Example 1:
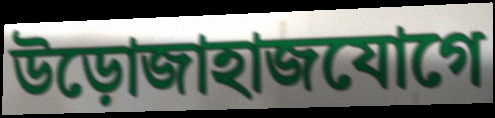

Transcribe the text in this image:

উড়োজাহাজযোগে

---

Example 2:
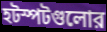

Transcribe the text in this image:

হটস্পটগুলোর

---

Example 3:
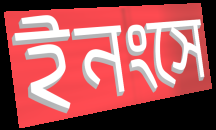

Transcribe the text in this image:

ইনংসে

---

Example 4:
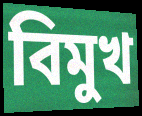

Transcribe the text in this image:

বিমুখ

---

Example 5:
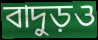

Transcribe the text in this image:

বাদুড়ও